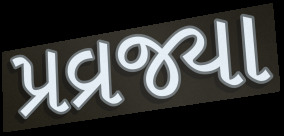
પ્રવ્રજ્યા